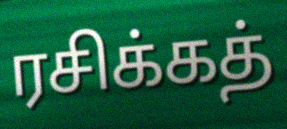
ரசிக்கத்